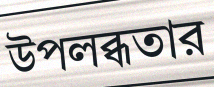
উপলব্ধতার